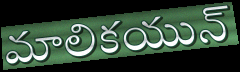
మాలికయున్